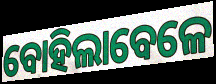
ବୋହିଲାବେଳେ